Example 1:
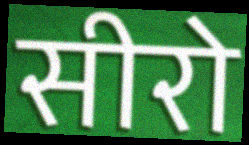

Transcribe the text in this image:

सीरो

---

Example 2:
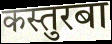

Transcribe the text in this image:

कस्तुरबा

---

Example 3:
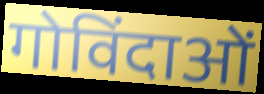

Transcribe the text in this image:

गोविंदाओं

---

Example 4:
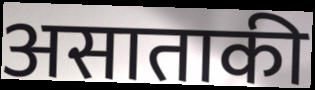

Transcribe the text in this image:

असाताकी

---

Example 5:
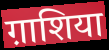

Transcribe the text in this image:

ग़ाशिया